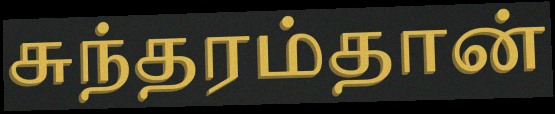
சுந்தரம்தான்